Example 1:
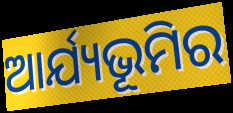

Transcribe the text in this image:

ଆର୍ଯ୍ୟଭୂମିର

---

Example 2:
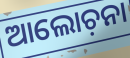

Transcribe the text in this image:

ଆଲୋଚ଼ନା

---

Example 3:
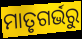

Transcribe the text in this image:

ମାତୃଗର୍ଭରୁ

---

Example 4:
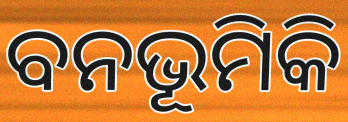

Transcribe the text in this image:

ବନଭୂମିକି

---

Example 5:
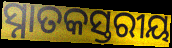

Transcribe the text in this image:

ସ୍ନାତକସ୍ତରୀୟ